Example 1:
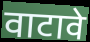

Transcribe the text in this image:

वाटावे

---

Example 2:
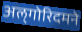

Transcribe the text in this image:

अल्गोरिदमने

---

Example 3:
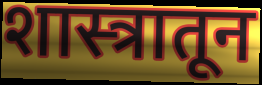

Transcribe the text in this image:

शास्त्रातून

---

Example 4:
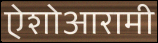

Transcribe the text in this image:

ऐशोआरामी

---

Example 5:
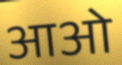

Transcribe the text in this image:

आओ